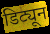
डिट्यून